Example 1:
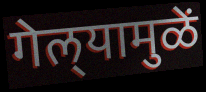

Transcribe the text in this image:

गेल्यामुळें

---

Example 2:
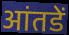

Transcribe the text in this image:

आंतडें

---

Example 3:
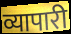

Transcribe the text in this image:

व्‍यापारी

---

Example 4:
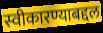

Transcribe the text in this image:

स्वीकारण्याबद्दल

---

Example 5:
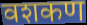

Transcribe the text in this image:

वशकण